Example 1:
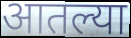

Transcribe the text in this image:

आतल्या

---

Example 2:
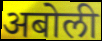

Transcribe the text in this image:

अबोली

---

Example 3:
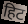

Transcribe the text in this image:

हिट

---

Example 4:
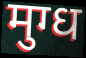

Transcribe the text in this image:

मुग्ध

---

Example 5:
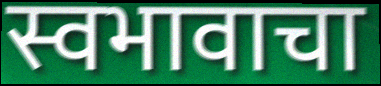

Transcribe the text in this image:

स्वभावाचा